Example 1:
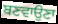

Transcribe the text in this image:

ਬਣਵਾਉਣਾ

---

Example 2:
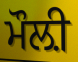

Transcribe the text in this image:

ਮੌਲ਼ੀ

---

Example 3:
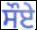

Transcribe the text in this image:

ਸੌਏ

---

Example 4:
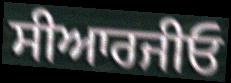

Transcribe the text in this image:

ਸੀਆਰਜੀਓ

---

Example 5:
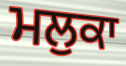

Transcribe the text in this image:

ਮਲੁਕਾ